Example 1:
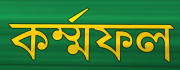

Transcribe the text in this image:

কর্ম্মফল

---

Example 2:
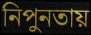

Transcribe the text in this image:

নিপুনতায়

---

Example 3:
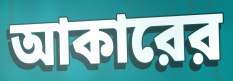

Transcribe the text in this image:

আকারের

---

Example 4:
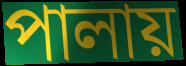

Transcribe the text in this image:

পালায়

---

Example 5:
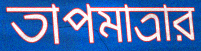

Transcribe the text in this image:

তাপমাত্রার